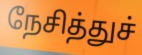
நேசித்துச்